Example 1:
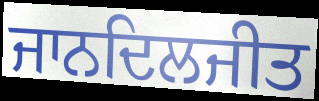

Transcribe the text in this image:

ਜਾਨਦਿਲਜੀਤ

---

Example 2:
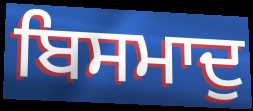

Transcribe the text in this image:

ਬਿਸਮਾਦੁ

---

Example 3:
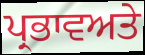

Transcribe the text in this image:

ਪ੍ਰਭਾਵਅਤੇ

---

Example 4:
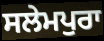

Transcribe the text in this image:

ਸਲੇਮਪੁਰਾ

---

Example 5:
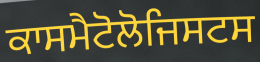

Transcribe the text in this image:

ਕਾਸਮੈਟੋਲੋਜਿਸਟਸ